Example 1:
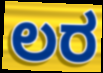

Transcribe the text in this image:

ಲರ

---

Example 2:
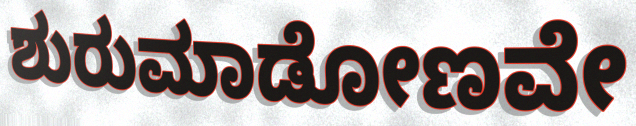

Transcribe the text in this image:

ಶುರುಮಾಡೋಣವೇ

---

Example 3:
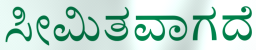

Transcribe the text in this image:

ಸೀಮಿತವಾಗದೆ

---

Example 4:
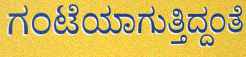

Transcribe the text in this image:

ಗಂಟೆಯಾಗುತ್ತಿದ್ದಂತೆ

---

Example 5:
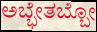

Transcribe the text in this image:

ಅಬ್ಭೇತಬ್ಬೋ